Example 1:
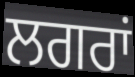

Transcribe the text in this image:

ਲਗਰਾਂ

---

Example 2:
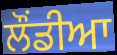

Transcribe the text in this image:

ਲੌਂਡੀਆ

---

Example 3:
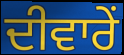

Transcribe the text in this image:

ਦੀਵਾਰੇਂ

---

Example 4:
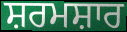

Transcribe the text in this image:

ਸ਼ਰਮਸ਼ਾਰ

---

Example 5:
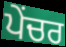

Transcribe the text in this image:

ਪੇਂਚਰ